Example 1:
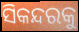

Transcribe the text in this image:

ସିକନ୍ଦରକୁ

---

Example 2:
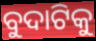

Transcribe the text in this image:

ବୁଦାଟିକୁ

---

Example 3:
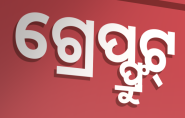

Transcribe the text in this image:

ଗ୍ରେପ୍ଫ୍ରୁଟ୍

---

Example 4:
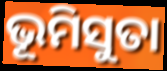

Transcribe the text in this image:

ଭୂମିସୁତା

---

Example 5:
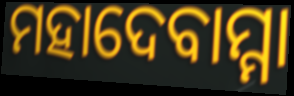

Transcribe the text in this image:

ମହାଦେବାମ୍ମା